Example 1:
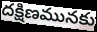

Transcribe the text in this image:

దక్షిణమునకు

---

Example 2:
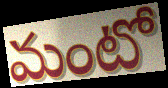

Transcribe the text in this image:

మంటో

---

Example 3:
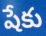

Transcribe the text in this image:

షేకు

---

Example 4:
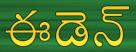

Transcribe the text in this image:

ఈడెన్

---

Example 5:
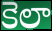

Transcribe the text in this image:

కెలా